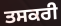
ਤਸਕਰੀ